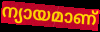
ന്യായമാണ്